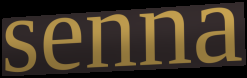
senna